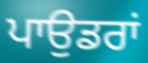
ਪਾਉਡਰਾਂ